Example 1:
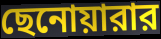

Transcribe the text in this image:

ছেনোয়ারার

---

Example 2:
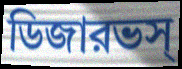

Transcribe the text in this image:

ডিজারভস্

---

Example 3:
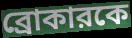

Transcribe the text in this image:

ব্রোকারকে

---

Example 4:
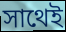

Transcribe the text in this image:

সাথেই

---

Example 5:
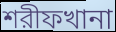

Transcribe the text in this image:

শরীফখানা